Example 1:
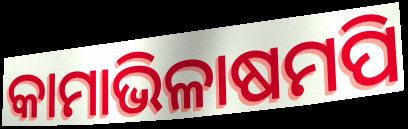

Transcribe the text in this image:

କାମାଭିଳାଷମପି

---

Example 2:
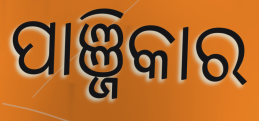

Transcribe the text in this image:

ପାଞ୍ଜିକାର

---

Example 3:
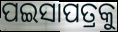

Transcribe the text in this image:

ପଇସାପତ୍ରକୁ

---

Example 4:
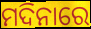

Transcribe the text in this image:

ମଦିନାରେ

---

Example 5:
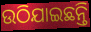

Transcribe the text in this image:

ଉଠିଯାଇଛନ୍ତି